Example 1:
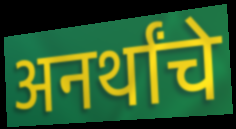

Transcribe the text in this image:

अनर्थांचे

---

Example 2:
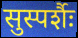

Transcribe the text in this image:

सुस्पर्शैः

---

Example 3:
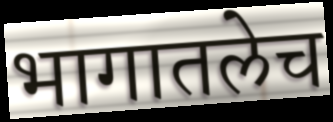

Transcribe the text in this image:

भागातलेच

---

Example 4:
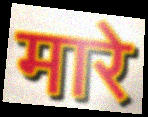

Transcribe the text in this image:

मारे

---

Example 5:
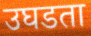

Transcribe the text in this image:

उघडता